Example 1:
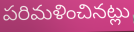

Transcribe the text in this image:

పరిమళించినట్లు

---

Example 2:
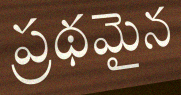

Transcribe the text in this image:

ప్రథమైన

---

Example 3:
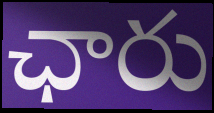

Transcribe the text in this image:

ఛారు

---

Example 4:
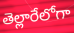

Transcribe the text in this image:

తెల్లారేలోగా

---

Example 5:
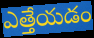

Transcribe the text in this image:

ఎత్తేయడం